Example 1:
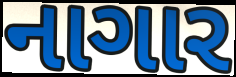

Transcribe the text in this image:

નાગાર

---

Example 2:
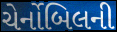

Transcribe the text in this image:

ચેર્નોબિલની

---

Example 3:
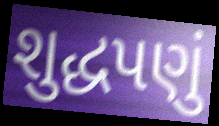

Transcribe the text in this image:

શુદ્ધપણું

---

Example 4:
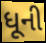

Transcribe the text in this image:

ધૂની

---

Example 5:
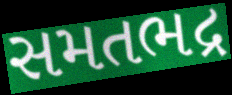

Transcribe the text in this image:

સમતભદ્ર